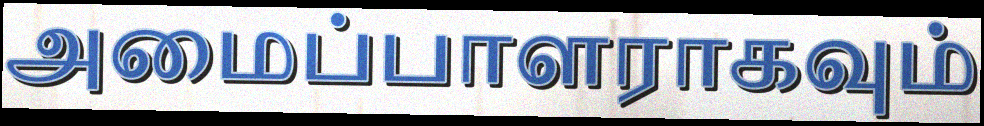
அமைப்பாளராகவும்